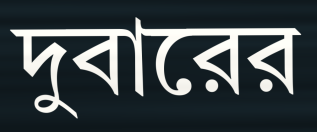
দুবারের